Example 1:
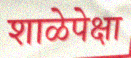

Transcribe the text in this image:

शाळेपेक्षा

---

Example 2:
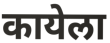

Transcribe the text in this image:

कायेला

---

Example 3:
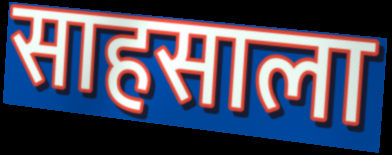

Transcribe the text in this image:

साहसाला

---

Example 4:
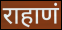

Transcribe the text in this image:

राहाणं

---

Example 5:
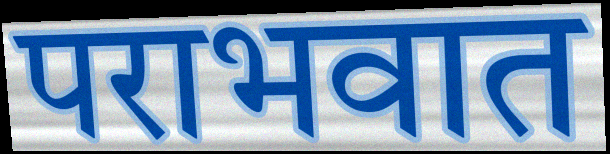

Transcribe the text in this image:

पराभवात